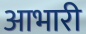
आभारी